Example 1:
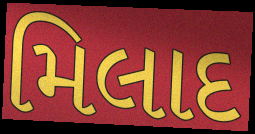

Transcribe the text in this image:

મિલાદ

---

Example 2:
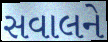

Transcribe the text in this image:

સવાલને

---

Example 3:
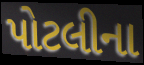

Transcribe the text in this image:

પોટલીના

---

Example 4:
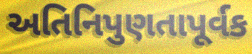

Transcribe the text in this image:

અતિનિપુણતાપૂર્વક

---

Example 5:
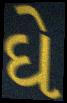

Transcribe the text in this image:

ઘે